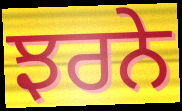
ਝਰਨੇ